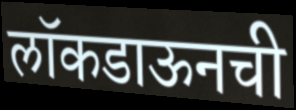
लॉकडाऊनची